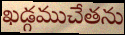
ఖడ్గముచేతను